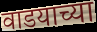
वाडयाच्या